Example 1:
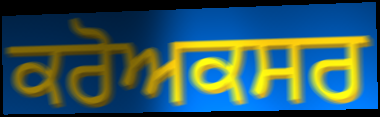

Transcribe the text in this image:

ਕਰੋਅਕਸਰ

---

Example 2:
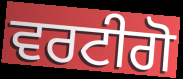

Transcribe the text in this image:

ਵਰਟੀਗੋ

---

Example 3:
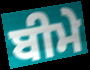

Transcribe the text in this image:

ਬੀਮੇ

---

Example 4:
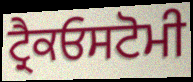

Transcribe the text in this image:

ਟ੍ਰੈਕਓਸਟੋਮੀ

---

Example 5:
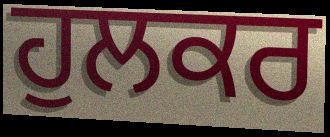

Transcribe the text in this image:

ਹੁਲਕਰ